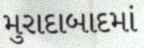
મુરાદાબાદમાં